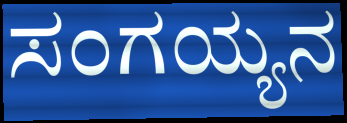
ಸಂಗಯ್ಯನ